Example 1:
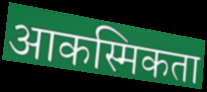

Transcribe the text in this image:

आकस्मिकता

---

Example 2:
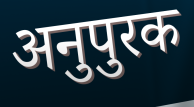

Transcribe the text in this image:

अनुपुरक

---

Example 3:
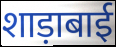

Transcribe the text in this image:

शाड़ाबाई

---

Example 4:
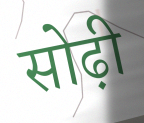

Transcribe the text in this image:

सोढ़ी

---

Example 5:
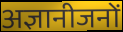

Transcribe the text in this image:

अज्ञानीजनों